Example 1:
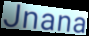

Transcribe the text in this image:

Jnana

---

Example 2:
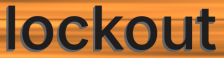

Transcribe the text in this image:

lockout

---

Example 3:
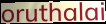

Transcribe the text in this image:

oruthalai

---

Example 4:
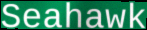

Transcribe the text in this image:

Seahawk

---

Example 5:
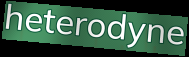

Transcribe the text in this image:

heterodyne